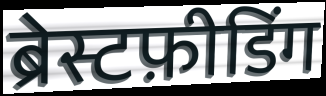
ब्रेस्टफ़ीडिंग